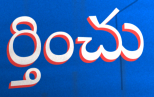
ర్తించు